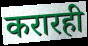
करारही